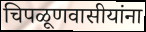
चिपळूणवासीयांना